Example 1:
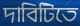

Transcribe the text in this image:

দাবিটিতে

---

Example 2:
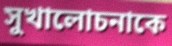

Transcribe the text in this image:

সুখালোচনাকে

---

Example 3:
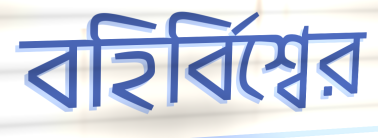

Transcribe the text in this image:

বহির্বিশ্বের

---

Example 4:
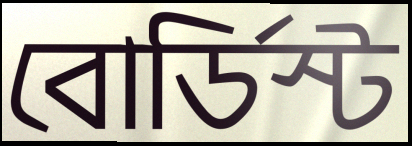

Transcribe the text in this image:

বোর্ডিস্ট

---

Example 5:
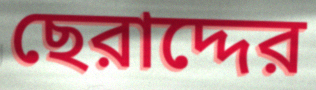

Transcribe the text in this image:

ছেরাদ্দের